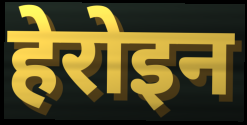
हेरोइन